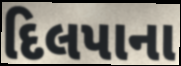
દિલપાના